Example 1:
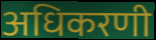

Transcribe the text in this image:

अधिकरणी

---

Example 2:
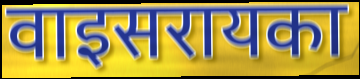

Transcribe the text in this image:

वाइसरायका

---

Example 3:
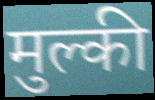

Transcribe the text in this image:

मुल्की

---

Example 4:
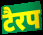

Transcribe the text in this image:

टैरप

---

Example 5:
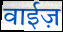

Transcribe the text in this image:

वाईज़